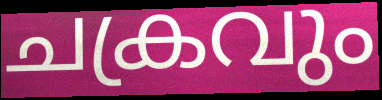
ചക്രവും